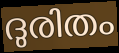
ദുരിതം